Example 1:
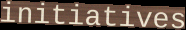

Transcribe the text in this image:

initiatives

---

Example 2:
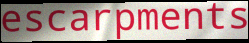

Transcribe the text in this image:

escarpments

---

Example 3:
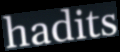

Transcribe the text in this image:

hadits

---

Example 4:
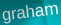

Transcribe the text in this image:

graham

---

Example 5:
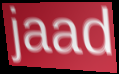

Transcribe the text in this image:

jaad